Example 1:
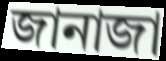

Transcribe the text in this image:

জানাজা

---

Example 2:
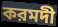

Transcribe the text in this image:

করমদী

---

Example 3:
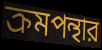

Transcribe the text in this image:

ক্রমপন্থার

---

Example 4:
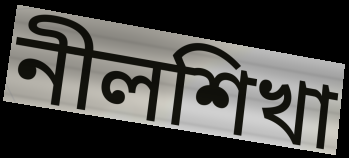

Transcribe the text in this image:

নীলশিখা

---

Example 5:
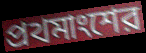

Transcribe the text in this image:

প্রথমাংশের